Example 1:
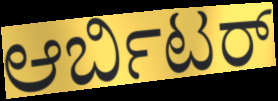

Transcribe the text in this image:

ಆರ್ಬಿಟರ್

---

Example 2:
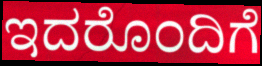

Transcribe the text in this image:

ಇದರೊಂದಿಗೆ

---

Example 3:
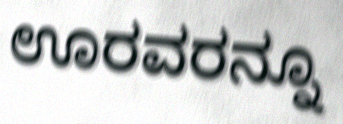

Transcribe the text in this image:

ಊರವರನ್ನೂ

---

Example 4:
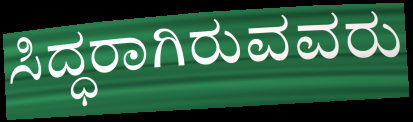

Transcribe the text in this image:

ಸಿದ್ಧರಾಗಿರುವವರು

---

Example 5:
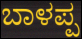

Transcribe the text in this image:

ಬಾಳಪ್ಪ